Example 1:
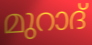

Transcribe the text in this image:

മുറാദ്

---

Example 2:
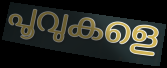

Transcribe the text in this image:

പൂവുകളെ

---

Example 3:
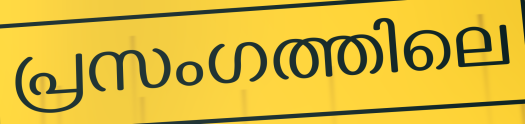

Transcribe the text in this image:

പ്രസംഗത്തിലെ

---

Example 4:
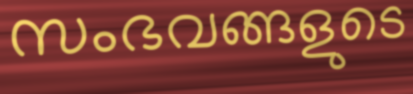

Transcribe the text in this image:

സംഭവങ്ങളുടെ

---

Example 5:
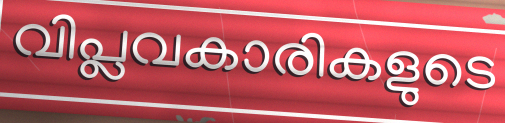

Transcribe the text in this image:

വിപ്ലവകാരികളുടെ